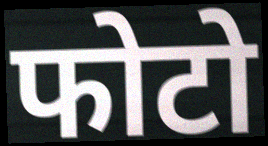
फोटो